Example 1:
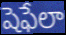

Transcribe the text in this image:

షెఫేలా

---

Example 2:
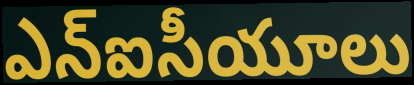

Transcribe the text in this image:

ఎన్ఐసీయూలు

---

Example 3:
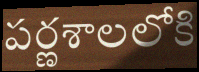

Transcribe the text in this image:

పర్ణశాలలోకి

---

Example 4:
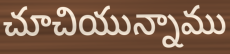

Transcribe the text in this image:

చూచియున్నాము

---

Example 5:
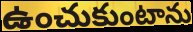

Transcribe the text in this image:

ఉంచుకుంటాను